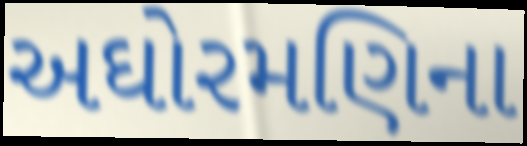
અઘોરમણિના